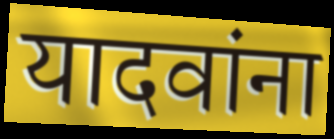
यादवांना